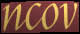
ncov